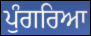
ਪੁੰਗਰਿਆ